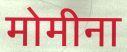
मोमीना